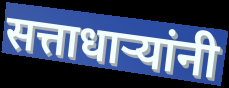
सत्ताधाऱ्यांनी